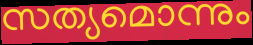
സത്യമൊന്നും